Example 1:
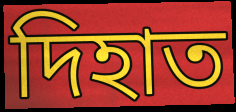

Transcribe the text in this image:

দিহাত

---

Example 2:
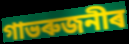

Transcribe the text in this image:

গাভৰুজনীৰ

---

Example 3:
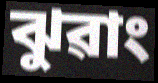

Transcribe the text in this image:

ঝুৱাং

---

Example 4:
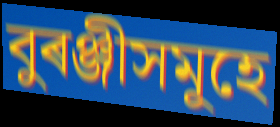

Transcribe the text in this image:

বুৰঞ্জীসমূহে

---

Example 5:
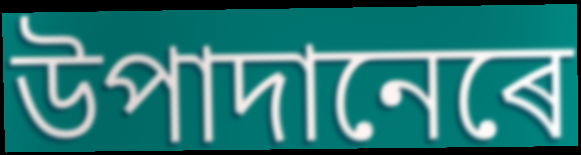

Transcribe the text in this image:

উপাদানেৰে